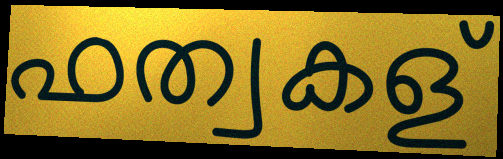
ഫത്വകള്